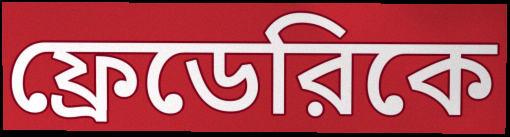
ফ্রেডেরিকে